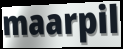
maarpil